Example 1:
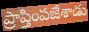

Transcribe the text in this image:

ప్రాప్తింపజేశాడు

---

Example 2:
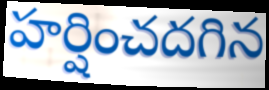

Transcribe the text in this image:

హర్షించదగిన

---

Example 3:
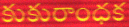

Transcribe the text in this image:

కుకురాంధక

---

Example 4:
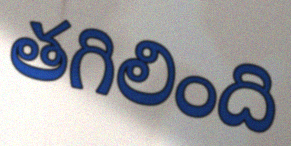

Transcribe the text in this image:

తగిలింది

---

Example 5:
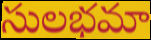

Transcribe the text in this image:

సులభమా